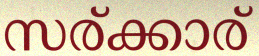
സര്ക്കാര്